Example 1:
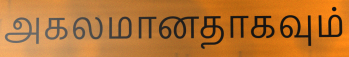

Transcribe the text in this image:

அகலமானதாகவும்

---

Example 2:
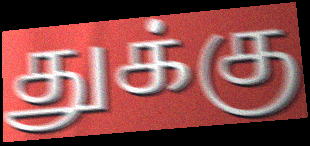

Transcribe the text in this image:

துக்கு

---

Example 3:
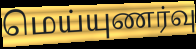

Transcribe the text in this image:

மெய்யுணர்வு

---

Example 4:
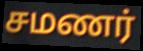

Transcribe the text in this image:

சமணர்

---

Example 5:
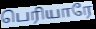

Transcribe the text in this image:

பெரியாரே